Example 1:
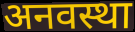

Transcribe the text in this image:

अनवस्था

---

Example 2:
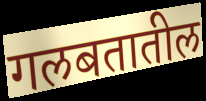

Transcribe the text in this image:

गलबतातील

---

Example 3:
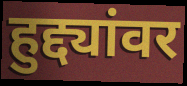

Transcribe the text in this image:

हुद्द्यांवर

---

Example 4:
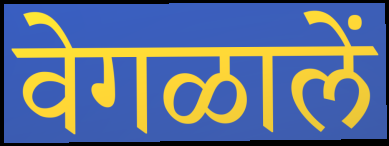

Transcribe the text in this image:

वेगळालें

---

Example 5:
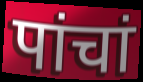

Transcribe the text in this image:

पांचां